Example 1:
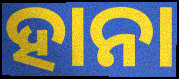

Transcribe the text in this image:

ହାନା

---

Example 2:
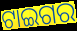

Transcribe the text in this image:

ଟାଇଗର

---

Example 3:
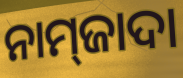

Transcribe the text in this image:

ନାମ୍‌ଜାଦା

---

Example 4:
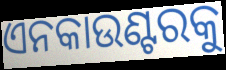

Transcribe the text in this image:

ଏନକାଉଣ୍ଟରକୁ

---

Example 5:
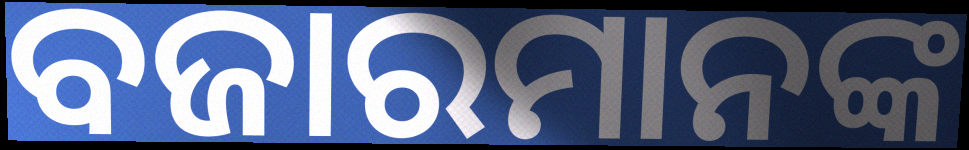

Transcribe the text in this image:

ବଜାରମାନଙ୍କ